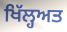
ਖਿੱਲ੍ਹਅਤ